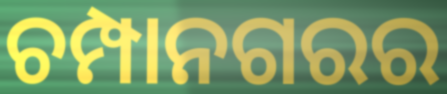
ଚମ୍ପାନଗରର